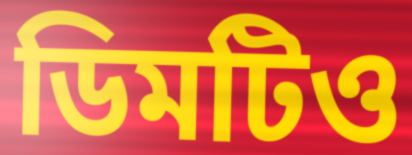
ডিমটিও